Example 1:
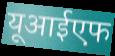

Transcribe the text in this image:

यूआईएफ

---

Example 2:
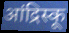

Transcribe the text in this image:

आंद्रिस्कू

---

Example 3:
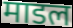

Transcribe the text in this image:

माडल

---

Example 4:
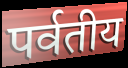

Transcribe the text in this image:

पर्वतीय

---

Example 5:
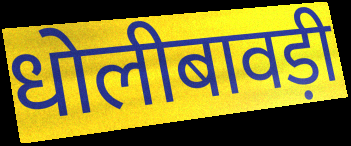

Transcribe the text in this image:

धोलीबावड़ी